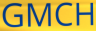
GMCH